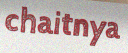
chaitnya